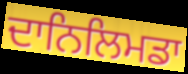
ਦਾਨਿਲਿਮਡਾ